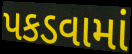
પકડવામાં